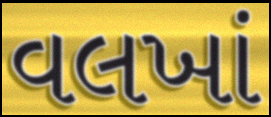
વલખાં